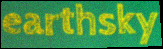
earthsky